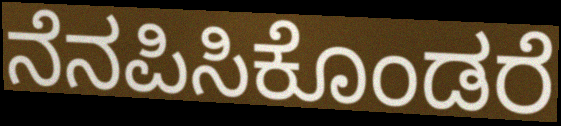
ನೆನಪಿಸಿಕೊಂಡರೆ